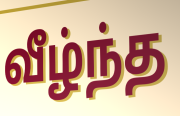
வீழ்ந்த